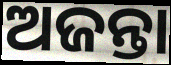
ଅଜନ୍ତା